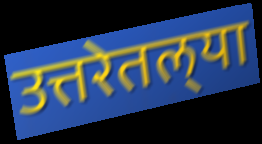
उत्तरेतल्या